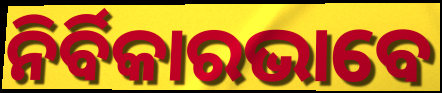
ନିର୍ବିକାରଭାବେ